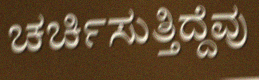
ಚರ್ಚಿಸುತ್ತಿದ್ದೆವು